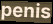
penis